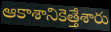
ఆకాశానికెత్తేశారు